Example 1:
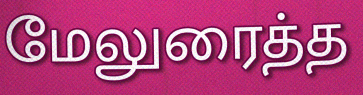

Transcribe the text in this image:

மேலுரைத்த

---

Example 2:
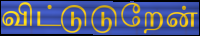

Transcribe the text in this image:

விட்டுடுறேன்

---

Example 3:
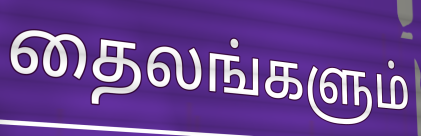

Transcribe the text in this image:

தைலங்களும்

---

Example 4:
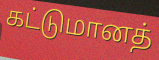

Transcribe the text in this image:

கட்டுமானத்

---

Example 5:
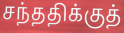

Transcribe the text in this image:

சந்ததிக்குத்